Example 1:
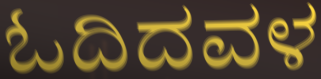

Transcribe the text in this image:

ಓದಿದವಳ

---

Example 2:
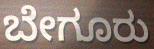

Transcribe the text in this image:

ಬೇಗೂರು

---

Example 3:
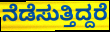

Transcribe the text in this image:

ನೆಡೆಸುತ್ತಿದ್ದರೆ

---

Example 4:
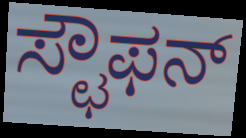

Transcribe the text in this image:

ಸ್ಟೌಫನ್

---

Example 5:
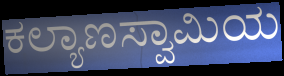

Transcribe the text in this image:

ಕಲ್ಯಾಣಸ್ವಾಮಿಯ